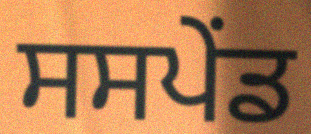
ਸਸਪੇੰਡ